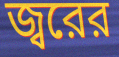
জ্বরের